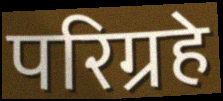
परिग्रहे